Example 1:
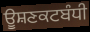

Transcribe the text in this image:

ਊਸ਼ਣਕਟਬੰਧੀ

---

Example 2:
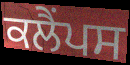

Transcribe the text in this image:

ਕਲੈਂਪਸ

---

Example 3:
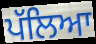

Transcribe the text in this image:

ਪੱਲਿਆ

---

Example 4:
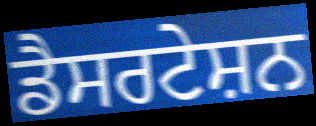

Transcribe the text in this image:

ਡੈਸਰਟੇਸ਼ਨ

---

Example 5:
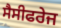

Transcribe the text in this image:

ਸੈਸੀਫਰੇਜ